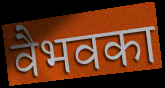
वैभवका